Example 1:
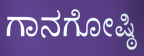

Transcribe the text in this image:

ಗಾನಗೋಷ್ಠಿ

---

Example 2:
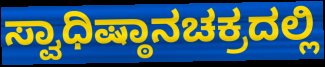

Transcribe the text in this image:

ಸ್ವಾಧಿಷ್ಠಾನಚಕ್ರದಲ್ಲಿ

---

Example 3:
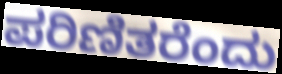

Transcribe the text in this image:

ಪರಿಣಿತರೆಂದು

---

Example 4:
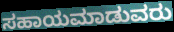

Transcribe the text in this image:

ಸಹಾಯಮಾಡುವರು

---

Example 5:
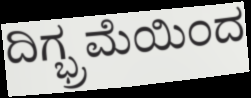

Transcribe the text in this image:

ದಿಗ್ಭ್ರಮೆಯಿಂದ